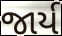
જાર્ય